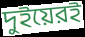
দুইয়েরই